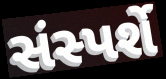
સંસ્પર્શે